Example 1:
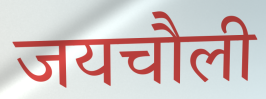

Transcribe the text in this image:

जयचौली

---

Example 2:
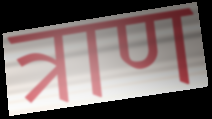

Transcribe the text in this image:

त्राण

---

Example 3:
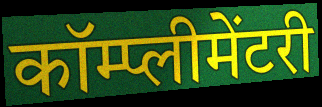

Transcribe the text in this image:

कॉम्प्लीमेंटरी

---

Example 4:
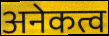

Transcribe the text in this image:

अनेकत्व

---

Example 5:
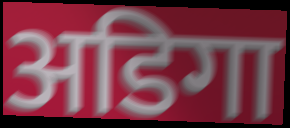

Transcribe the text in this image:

अडिगा